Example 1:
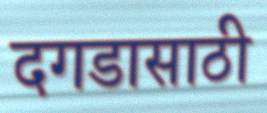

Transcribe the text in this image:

दगडासाठी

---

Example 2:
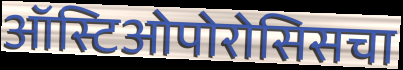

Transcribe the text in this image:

ऑस्टिओपोरोसिसचा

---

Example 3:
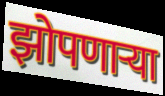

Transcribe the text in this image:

झोपणार्‍या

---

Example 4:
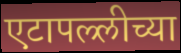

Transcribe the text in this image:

एटापल्लीच्या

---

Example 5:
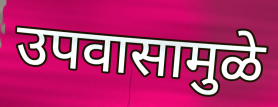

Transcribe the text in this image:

उपवासामुळे